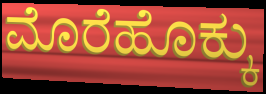
ಮೊರೆಹೊಕ್ಕು